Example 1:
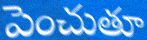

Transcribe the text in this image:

పెంచుతూ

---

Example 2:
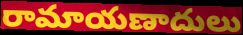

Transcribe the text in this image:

రామాయణాదులు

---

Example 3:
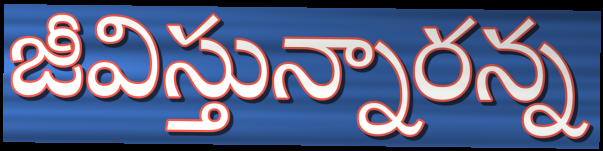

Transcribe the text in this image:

జీవిస్తున్నారన్న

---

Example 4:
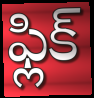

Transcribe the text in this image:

ఫ్లిక్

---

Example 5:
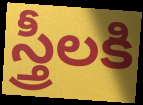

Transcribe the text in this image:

స్త్రీలకి